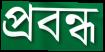
প্রবন্ধ